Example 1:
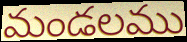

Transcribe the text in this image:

మండలము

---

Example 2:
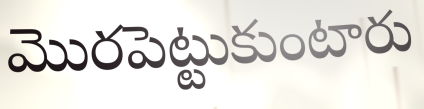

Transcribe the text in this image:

మొరపెట్టుకుంటారు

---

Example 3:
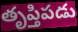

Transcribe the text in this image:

తృప్తిపడు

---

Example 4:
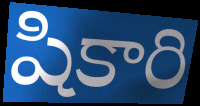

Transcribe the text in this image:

షికారి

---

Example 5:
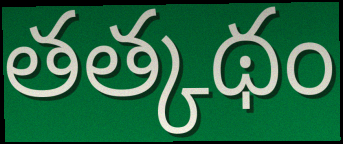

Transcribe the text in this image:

తత్కథం